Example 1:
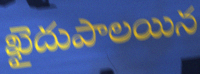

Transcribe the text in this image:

ఖైదుపాలయిన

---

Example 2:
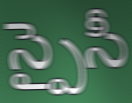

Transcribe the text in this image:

స్పైసీ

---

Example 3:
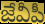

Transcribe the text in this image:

జేవీపీ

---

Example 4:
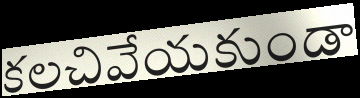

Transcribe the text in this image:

కలచివేయకుండా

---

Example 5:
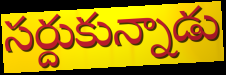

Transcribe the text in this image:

సర్దుకున్నాడు